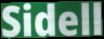
Sidell